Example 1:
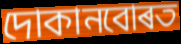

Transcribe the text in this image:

দোকানবোৰত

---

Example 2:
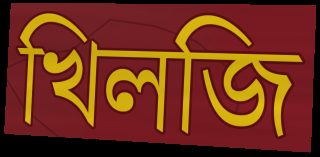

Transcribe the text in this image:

খিলজি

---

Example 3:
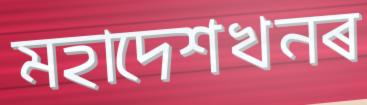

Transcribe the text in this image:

মহাদেশখনৰ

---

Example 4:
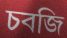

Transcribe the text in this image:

চবজি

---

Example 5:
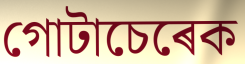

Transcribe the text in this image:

গোটাচেৰেক